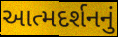
આત્મદર્શનનું